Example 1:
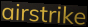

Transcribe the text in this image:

airstrike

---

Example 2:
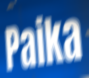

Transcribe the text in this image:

Paika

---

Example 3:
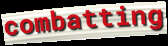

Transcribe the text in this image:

combatting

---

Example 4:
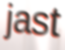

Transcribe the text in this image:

jast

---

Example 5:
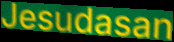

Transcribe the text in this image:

Jesudasan